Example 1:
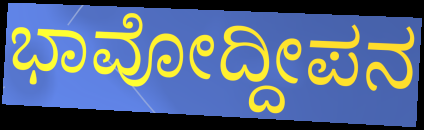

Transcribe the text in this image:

ಭಾವೋದ್ದೀಪನ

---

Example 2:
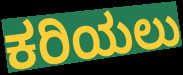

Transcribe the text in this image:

ಕರಿಯಲು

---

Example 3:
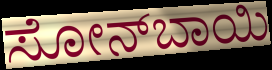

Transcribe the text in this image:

ಸೋನ್‍ಬಾಯಿ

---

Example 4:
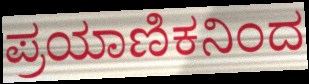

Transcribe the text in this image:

ಪ್ರಯಾಣಿಕನಿಂದ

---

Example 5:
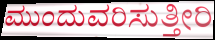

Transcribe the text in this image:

ಮುಂದುವರಿಸುತ್ತೀರಿ